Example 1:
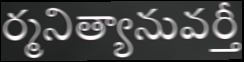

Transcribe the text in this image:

ర్మనిత్యానువర్తీ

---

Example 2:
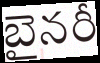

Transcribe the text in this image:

బైనరీ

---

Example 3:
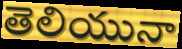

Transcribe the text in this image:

తెలియునా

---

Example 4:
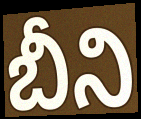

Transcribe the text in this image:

బీని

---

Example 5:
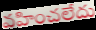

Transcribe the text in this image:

వహించలేదు